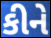
કીને